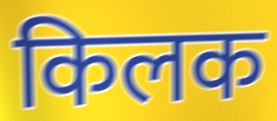
किलक